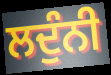
ਲਦੁੰਨੀ